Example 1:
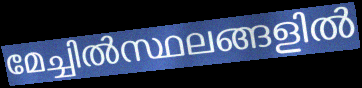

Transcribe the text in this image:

മേച്ചിൽസ്ഥലങ്ങളിൽ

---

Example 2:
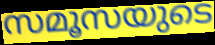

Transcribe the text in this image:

സമൂസയുടെ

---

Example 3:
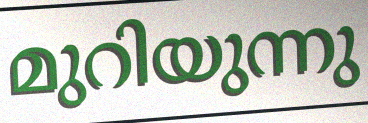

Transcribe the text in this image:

മുറിയുന്നു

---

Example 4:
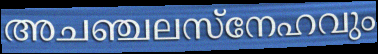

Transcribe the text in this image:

അചഞ്ചലസ്നേഹവും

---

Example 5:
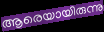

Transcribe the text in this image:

ആരെയായിരുന്നു